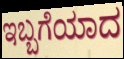
ಇಬ್ಬಗೆಯಾದ